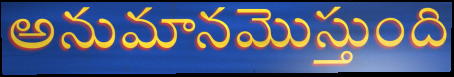
అనుమానమొస్తుంది